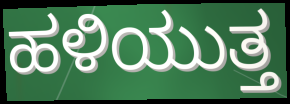
ಹಳಿಯುತ್ತ